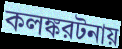
কলঙ্করটনায়